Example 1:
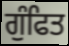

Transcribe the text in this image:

ਗੁੰਫਿਤ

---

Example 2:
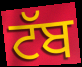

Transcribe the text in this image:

ਟੱਬ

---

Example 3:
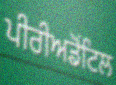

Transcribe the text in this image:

ਪੀਰੀਅਡੋਂਟਿਲ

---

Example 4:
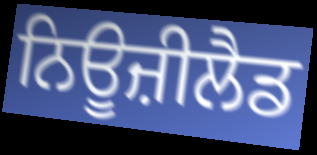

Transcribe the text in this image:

ਨਿਊਜ਼ੀਲੈਡ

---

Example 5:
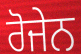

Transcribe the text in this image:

ਰੋਜੇਨ